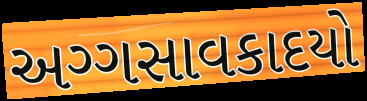
અગ્ગસાવકાદયો